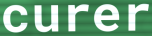
curer